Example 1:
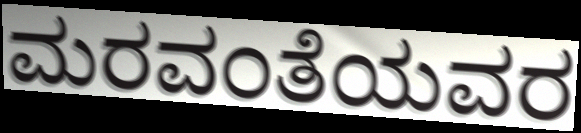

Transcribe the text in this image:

ಮರವಂತೆಯವರ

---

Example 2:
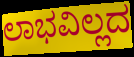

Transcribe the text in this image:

ಲಾಭವಿಲ್ಲದ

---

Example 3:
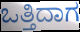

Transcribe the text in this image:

ಒತ್ತಿದಾಗ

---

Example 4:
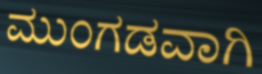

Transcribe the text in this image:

ಮುಂಗಡವಾಗಿ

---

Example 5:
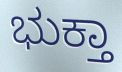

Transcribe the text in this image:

ಭುಕ್ತಾ